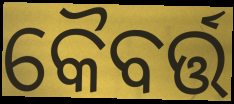
କୈବର୍ତ୍ତ